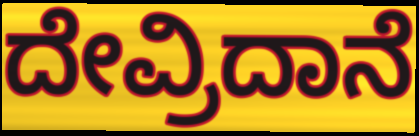
ದೇವ್ರಿದಾನೆ